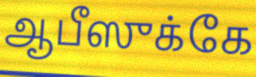
ஆபீஸுக்கே